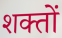
शक्तों